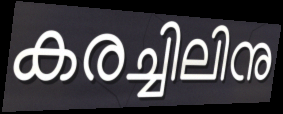
കരച്ചിലിനു